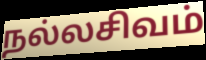
நல்லசிவம்